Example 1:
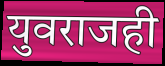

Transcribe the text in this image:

युवराजही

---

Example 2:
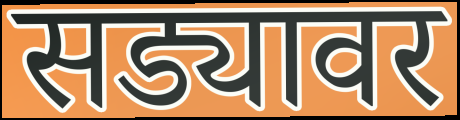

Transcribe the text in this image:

सड्यावर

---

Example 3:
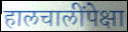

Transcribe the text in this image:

हालचालींपेक्षा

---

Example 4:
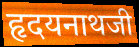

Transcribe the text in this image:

हृदयनाथजी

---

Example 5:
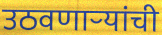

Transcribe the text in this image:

उठवणाऱ्यांची